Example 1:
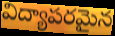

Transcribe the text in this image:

విద్యాపరమైన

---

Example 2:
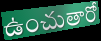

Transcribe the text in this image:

ఉంచుతారో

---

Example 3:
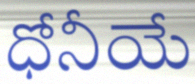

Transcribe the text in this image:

ధోనీయే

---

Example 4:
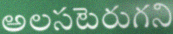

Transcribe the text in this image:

అలసటెరుగని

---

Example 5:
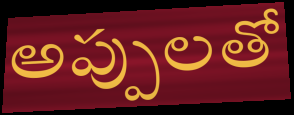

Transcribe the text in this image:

అప్పులతో